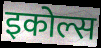
इकोल्स